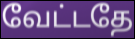
வேட்டதே